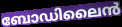
ബോഡിലൈൻ